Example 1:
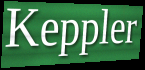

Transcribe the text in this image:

Keppler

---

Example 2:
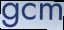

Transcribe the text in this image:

gcm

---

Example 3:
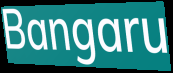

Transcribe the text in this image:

Bangaru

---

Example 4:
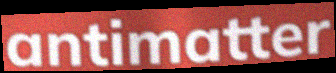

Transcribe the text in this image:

antimatter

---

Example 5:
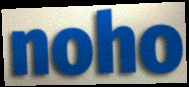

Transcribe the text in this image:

noho